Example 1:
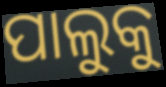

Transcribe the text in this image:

ପାଲୁକୁ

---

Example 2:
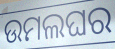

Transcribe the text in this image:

ଉମଲଘର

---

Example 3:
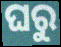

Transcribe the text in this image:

ଘରୁ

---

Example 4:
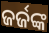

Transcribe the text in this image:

ଜର୍ଜଙ୍କ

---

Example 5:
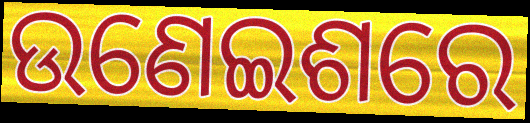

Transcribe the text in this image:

ଉଣେଇଶରେ